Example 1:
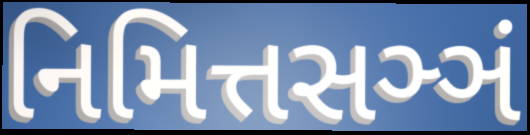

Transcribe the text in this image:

નિમિત્તસઞ્ઞં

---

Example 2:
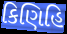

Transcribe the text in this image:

કિણિહિ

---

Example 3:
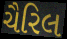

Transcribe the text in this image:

ચૈરિલ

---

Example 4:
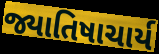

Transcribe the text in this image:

જ્યાતિષાચાર્ય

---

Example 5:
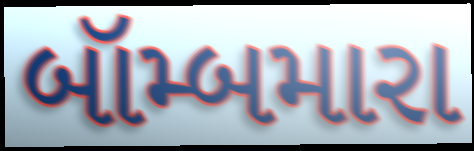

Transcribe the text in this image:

બૉમ્બમારા